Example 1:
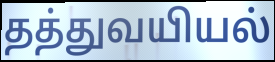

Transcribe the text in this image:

தத்துவயியல்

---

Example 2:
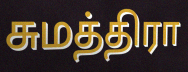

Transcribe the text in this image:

சுமத்திரா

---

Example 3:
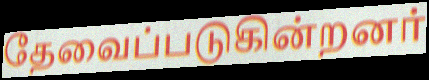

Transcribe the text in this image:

தேவைப்படுகின்றனர்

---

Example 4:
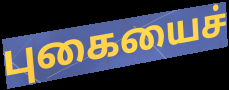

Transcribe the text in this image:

புகையைச்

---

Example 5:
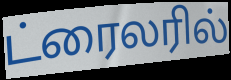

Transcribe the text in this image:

ட்ரைலரில்